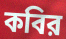
কবির